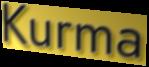
Kurma